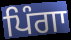
ਪਿੰਗਾ